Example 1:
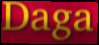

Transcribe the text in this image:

Daga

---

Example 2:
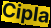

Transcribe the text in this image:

Cipla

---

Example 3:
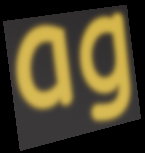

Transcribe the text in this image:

ag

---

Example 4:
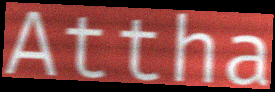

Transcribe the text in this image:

Attha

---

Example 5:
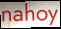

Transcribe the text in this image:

nahoy